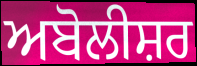
ਅਬੋਲੀਸ਼ਰ